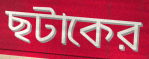
ছটাকের